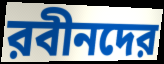
রবীনদের